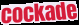
cockade